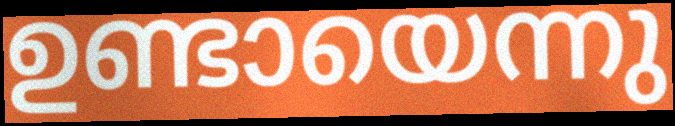
ഉണ്ടായെന്നു